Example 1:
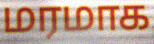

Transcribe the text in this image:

மரமாக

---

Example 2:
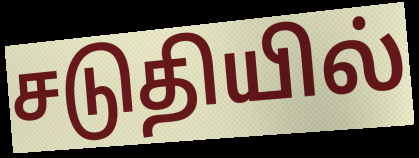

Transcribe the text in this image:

சடுதியில்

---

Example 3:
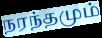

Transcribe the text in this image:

நரந்தமும்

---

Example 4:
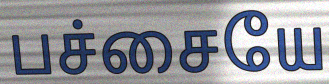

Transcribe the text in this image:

பச்சையே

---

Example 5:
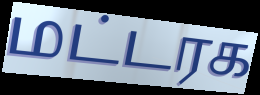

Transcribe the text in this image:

மட்டரக